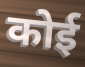
कोई